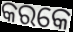
କରକେ